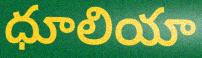
ధూలియా